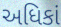
અધિકાં